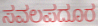
ಸವಲಪದೂರ